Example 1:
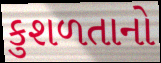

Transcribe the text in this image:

કુશળતાનો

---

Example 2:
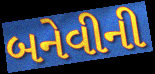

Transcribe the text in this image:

બનેવીની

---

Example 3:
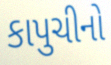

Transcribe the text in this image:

કાપુચીનો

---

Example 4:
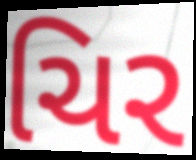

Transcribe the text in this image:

ચિર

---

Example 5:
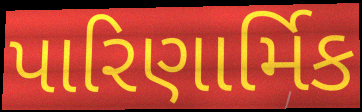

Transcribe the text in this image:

પારિણાર્મિક